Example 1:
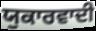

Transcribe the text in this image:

ਯੁਕਾਰਵਾਦੀ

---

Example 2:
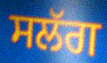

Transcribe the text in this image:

ਸਲੱਗ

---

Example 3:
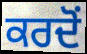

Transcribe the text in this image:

ਕਰਦੋਂ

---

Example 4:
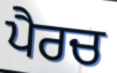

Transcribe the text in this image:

ਪੈਰਚ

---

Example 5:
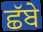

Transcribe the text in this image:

ਛੱਬੇ